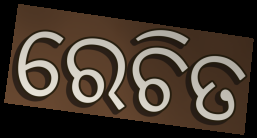
ରେଚିତ